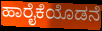
ಹಾರೈಕೆಯೊಡನೆ